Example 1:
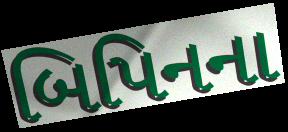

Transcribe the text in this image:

બિપિનના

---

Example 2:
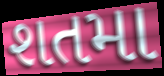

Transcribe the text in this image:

શતમા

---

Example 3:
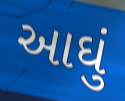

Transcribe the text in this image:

આઘું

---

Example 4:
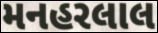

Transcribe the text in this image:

મનહરલાલ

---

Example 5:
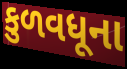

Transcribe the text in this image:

કુળવધૂના